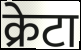
क्रेटा